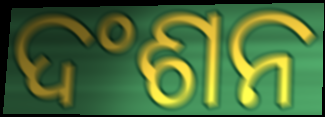
ଦଂଶନ